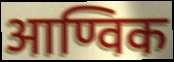
आण्विक